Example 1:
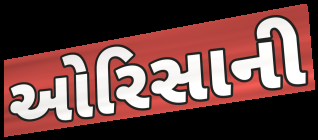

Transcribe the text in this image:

ઓરિસાની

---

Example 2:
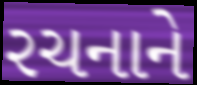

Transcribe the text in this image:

રચનાને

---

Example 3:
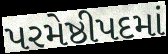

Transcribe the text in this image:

પરમેષ્ઠીપદમાં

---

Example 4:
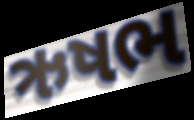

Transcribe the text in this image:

ઋષભ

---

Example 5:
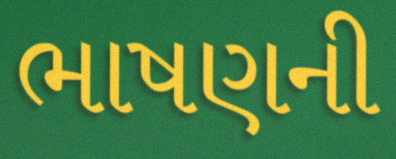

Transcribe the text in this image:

ભાષણની